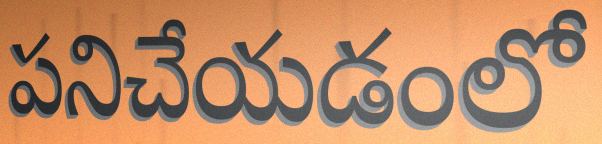
పనిచేయడంలో